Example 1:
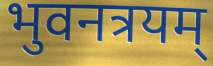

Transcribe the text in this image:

भुवनत्रयम्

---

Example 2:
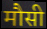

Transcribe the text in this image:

मौसी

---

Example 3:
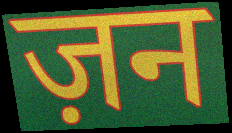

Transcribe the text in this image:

ज़न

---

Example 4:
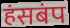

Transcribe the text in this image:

हंसबंप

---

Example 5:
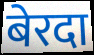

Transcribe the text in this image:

बेरदा